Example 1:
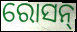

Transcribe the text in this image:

ରୋସନ୍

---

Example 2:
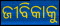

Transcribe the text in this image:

ଜୀବିକାକୁ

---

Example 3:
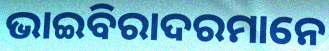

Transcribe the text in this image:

ଭାଇବିରାଦରମାନେ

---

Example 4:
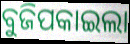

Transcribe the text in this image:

ବୁଜିପକାଇଲା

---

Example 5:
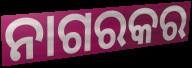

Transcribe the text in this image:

ନାଗରକର